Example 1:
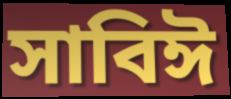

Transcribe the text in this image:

সাবিঈ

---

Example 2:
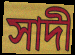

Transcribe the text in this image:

সাদী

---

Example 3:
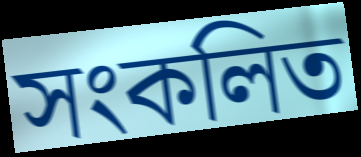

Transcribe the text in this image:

সংকলিত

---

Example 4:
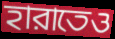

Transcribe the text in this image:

হারাতেও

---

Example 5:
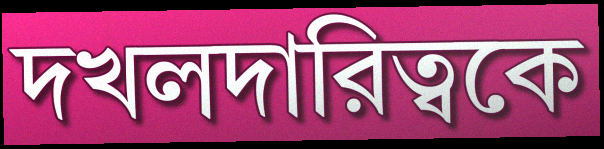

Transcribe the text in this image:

দখলদারিত্বকে